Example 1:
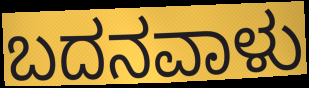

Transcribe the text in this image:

ಬದನವಾಳು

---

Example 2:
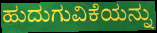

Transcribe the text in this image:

ಹುದುಗುವಿಕೆಯನ್ನು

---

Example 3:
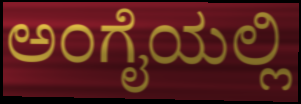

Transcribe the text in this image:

ಅಂಗೈಯಲ್ಲಿ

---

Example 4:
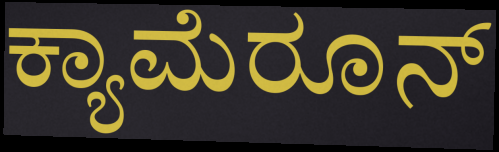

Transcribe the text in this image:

ಕ್ಯಾಮೆರೂನ್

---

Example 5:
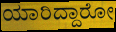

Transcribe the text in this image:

ಯಾರಿದ್ದಾರೋ